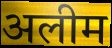
अलीम